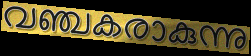
വഞ്ചകരാകുന്നു